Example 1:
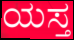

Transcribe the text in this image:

ಯಸ್ತ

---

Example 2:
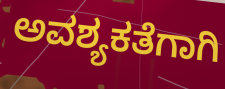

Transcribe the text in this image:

ಅವಶ್ಯಕತೆಗಾಗಿ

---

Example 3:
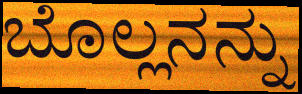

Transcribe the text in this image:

ಬೊಲ್ಲನನ್ನು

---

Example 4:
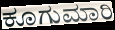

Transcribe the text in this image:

ಕೂಗುಮಾರಿ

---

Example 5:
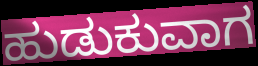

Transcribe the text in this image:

ಹುಡುಕುವಾಗ